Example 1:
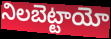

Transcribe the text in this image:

నిలబెట్టాయో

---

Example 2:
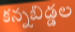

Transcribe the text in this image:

కన్నబిడ్డల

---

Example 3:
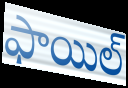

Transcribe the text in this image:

ఫాయిల్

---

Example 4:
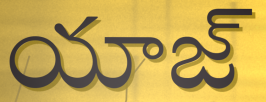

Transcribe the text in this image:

యాజ్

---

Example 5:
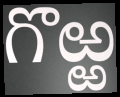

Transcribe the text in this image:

గొఱ్ఱ